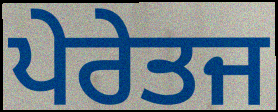
ਪੇਰੇਤਜ